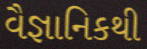
વૈજ્ઞાનિકથી